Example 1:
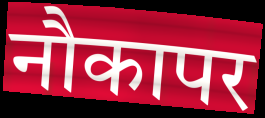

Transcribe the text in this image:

नौकापर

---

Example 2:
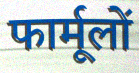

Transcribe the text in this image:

फार्मूलों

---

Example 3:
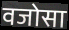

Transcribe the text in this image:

वजोसा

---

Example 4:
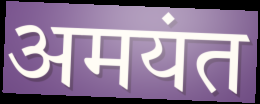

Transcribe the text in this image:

अमयंत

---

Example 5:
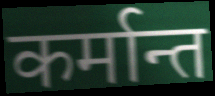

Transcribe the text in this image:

कर्मान्त